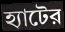
হ্যাটের